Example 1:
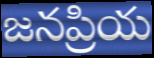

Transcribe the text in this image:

జనప్రియ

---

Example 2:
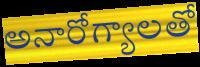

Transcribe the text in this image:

అనారోగ్యాలతో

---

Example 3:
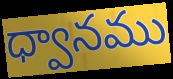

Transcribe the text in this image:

ధ్వానము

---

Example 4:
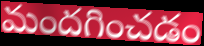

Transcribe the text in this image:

మందగించడం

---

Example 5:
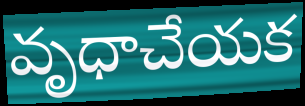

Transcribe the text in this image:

వృధాచేయక